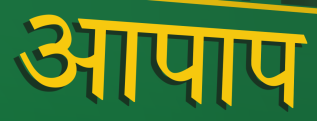
आपाप